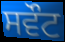
ਸਵੌਟ